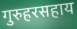
गुरुहरसहाय